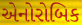
એનોરોબિક